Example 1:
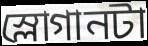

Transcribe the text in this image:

স্লোগানটা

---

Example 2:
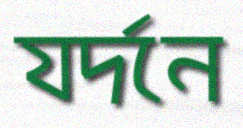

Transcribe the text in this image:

যর্দনে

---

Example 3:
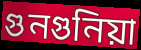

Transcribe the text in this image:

গুনগুনিয়া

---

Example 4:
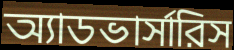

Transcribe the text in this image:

অ্যাডভার্সারিস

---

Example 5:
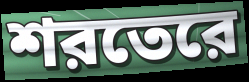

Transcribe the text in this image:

শরতেরে